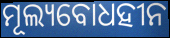
ମୂଲ୍ୟବୋଧହୀନ